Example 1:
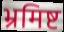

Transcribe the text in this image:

भ्रमिष्ट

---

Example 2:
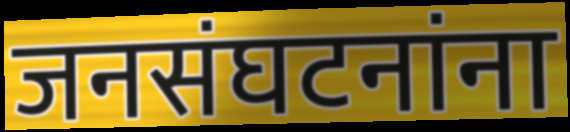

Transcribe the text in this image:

जनसंघटनांना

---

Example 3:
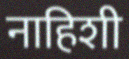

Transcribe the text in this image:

नाहिशी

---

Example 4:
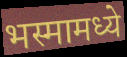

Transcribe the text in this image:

भस्मामध्ये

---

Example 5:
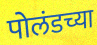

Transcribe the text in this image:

पोलंडच्या